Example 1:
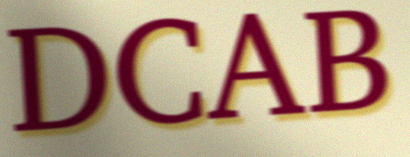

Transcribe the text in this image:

DCAB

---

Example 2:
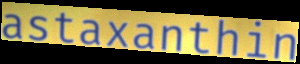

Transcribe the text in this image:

astaxanthin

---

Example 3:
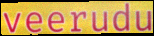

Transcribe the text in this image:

veerudu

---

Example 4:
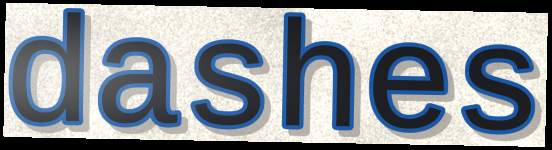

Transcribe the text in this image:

dashes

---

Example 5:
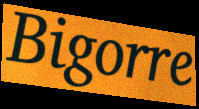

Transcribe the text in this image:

Bigorre